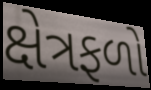
ક્ષેત્રફળો